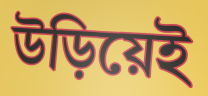
উড়িয়েই